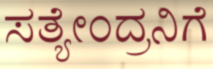
ಸತ್ಯೇಂದ್ರನಿಗೆ